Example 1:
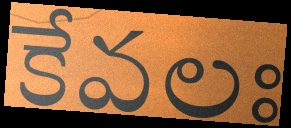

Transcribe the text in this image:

కేవలః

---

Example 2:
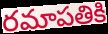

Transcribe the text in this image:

రమాపతికి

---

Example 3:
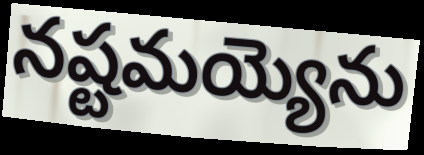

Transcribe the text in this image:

నష్టమయ్యెను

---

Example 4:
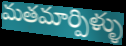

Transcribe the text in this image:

మతమార్పిళ్ళు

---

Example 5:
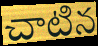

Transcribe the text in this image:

చాటిన